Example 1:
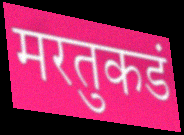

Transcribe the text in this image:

मरतुकडं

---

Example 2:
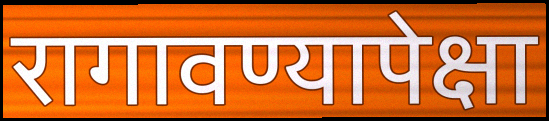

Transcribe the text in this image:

रागावण्यापेक्षा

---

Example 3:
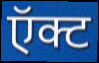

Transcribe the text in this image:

ऍक्ट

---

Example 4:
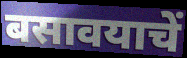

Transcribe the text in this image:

बसावयाचें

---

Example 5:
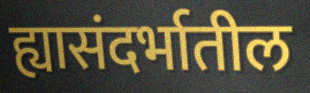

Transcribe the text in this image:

ह्यासंदर्भातील